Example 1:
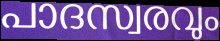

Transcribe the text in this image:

പാദസ്വരവും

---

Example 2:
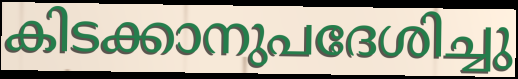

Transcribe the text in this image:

കിടക്കാനുപദേശിച്ചു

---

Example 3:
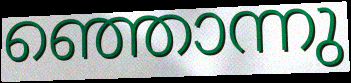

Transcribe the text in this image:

ഞ്ഞൊന്നു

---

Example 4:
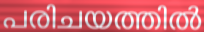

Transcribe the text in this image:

പരിചയത്തിൽ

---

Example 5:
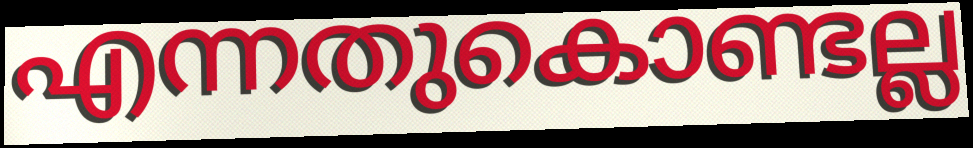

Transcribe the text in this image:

എന്നതുകൊണ്ടല്ല